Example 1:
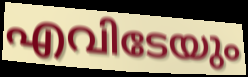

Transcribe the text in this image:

എവിടേയും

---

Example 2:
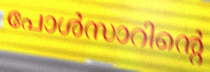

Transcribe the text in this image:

പോൾസാറിന്റെ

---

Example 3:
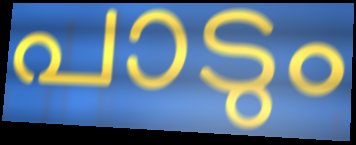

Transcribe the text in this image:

പാടും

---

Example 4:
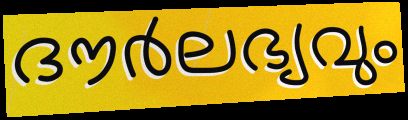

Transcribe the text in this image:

ദൗർലഭ്യവും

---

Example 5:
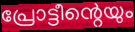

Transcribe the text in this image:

പ്രോട്ടീന്റെയും